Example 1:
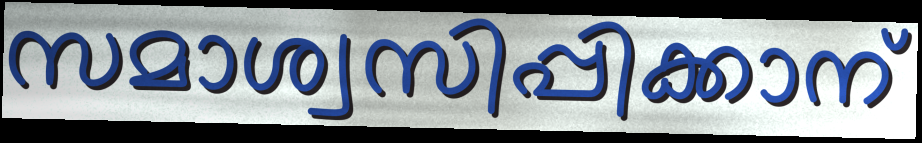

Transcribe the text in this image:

സമാശ്വസിപ്പിക്കാന്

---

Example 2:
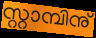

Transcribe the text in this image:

സ്റ്റാമ്പിനു്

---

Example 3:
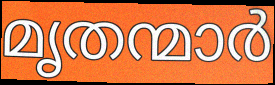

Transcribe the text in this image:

മൃതന്മാർ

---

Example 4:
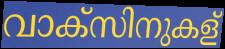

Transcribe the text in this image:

വാക്സിനുകള്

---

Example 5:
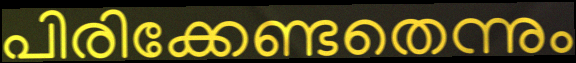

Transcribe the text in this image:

പിരിക്കേണ്ടതെന്നും